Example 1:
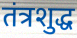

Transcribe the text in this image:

तंत्रशुद्ध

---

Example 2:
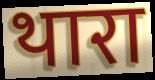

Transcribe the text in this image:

थारा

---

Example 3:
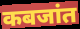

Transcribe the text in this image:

कबजांत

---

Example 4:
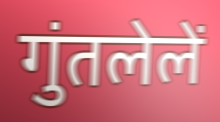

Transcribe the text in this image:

गुंतलेलें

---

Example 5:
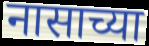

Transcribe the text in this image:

नासाच्या